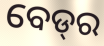
ବେଡ୍‍ର